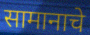
सामानाचे